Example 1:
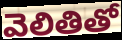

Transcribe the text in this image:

వెలితితో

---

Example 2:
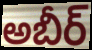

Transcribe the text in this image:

అబీర్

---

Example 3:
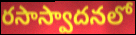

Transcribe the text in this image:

రసాస్వాదనలో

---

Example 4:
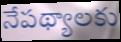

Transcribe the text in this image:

నేపథ్యాలకు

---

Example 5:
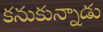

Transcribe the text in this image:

కనుకున్నాడు